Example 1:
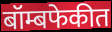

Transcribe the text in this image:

बॉम्बफेकीत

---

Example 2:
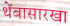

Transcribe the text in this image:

थेंबासारखा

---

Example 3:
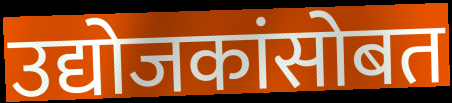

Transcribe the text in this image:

उद्योजकांसोबत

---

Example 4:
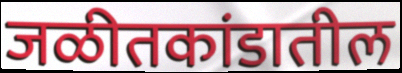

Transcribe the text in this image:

जळीतकांडातील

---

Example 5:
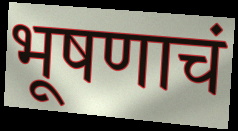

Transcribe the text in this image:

भूषणाचं